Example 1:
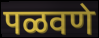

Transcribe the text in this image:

पळवणे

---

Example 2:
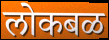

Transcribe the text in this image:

लोकबळ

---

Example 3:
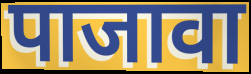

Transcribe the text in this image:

पाजावा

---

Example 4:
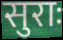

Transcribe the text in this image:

सुराः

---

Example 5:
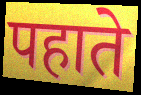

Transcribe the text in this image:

पहाते